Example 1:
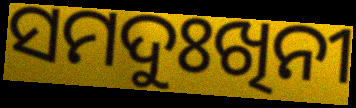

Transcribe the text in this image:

ସମଦୁଃଖିନୀ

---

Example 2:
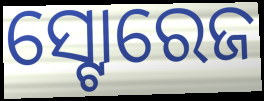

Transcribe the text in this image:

ସ୍ଟୋରେଜ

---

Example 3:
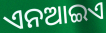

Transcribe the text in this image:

ଏନଆଇଏ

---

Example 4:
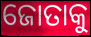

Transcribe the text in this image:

ଜୋତାକୁ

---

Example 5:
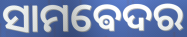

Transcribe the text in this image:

ସାମଵେଦର